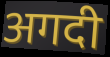
अगदी